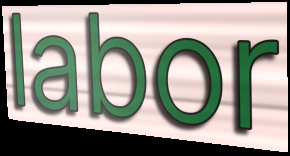
labor